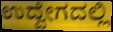
ಉದ್ವೇಗದಲ್ಲಿ